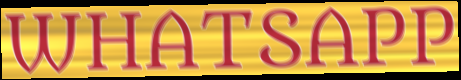
WHATSAPP